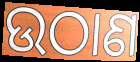
ଉଠାଣ